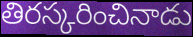
తిరస్కరించినాడు